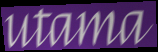
utama